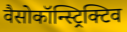
वैसोकॉन्स्ट्रिक्टिव